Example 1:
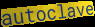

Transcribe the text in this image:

autoclave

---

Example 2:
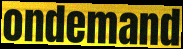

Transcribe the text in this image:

ondemand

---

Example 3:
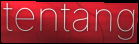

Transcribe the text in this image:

tentang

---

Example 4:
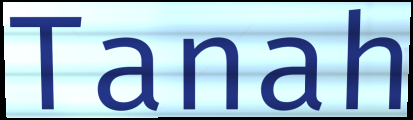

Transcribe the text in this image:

Tanah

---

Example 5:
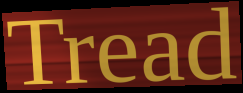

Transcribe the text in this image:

Tread